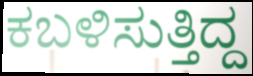
ಕಬಳಿಸುತ್ತಿದ್ದ